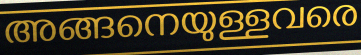
അങ്ങനെയുള്ളവരെ